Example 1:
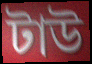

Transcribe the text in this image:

টাউ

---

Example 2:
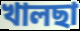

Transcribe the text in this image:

খালছা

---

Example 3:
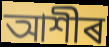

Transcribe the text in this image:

আশীৰ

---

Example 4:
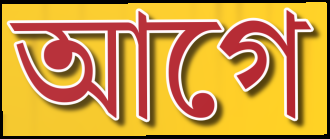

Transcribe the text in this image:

আগে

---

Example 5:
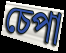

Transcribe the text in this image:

চেপা